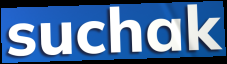
suchak